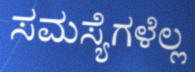
ಸಮಸ್ಯೆಗಳೆಲ್ಲ